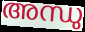
അന്ധു